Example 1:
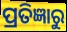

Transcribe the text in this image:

ପ୍ରତିଜ୍ଞାରୁ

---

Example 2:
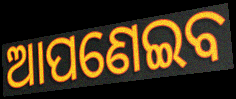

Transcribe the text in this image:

ଆପଣେଇବ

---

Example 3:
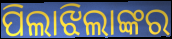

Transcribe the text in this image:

ପିଲାଝିଲାଙ୍କର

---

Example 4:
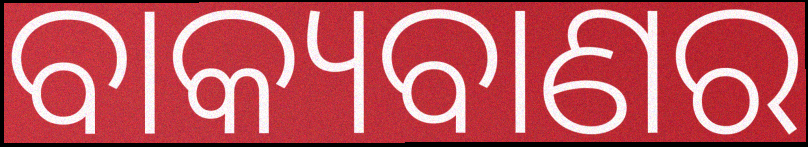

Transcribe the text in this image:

ବାକ୍ୟବାଣର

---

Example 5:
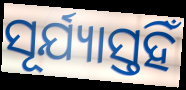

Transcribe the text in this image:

ସୂର୍ଯ୍ୟାସ୍ତହିଁ